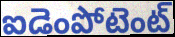
ఐడెంపోటెంట్